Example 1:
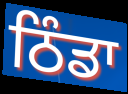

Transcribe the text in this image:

ਠਿੰਡਾ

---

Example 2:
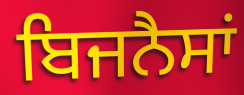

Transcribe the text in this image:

ਬਿਜਨੈਸਾਂ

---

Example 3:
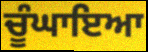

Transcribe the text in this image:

ਚੂੰਘਾਇਆ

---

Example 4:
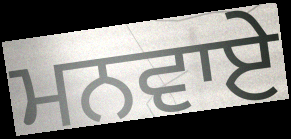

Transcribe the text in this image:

ਮਨਵਾਏ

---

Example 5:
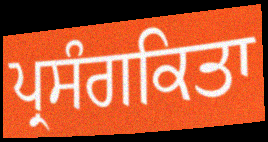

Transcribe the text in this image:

ਪ੍ਰਸੰਗਕਿਤਾ